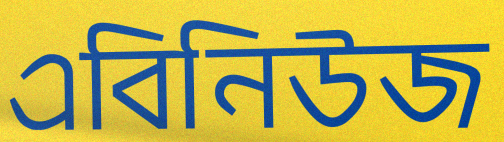
এবিনিউজ